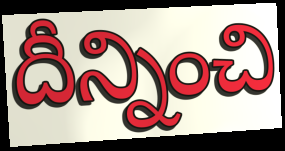
దీన్నించి